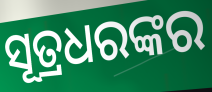
ସୂତ୍ରଧରଙ୍କର